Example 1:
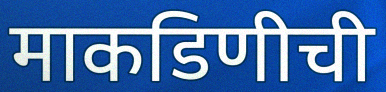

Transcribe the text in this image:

माकडिणीची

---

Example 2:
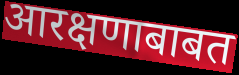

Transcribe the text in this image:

आरक्षणाबाबत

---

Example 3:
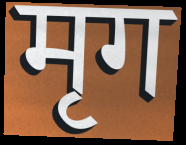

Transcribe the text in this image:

मृग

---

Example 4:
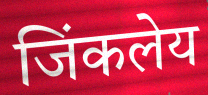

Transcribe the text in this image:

जिंकलेय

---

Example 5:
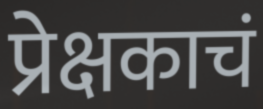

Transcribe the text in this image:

प्रेक्षकाचं